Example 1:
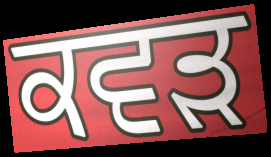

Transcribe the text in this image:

ਕਵੜ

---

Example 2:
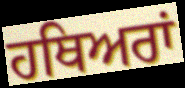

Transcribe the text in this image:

ਹਥਿਅਰਾਂ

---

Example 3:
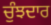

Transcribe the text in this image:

ਚੁੰਝਦਾਰ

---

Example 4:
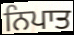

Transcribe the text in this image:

ਨਿਪਾਤ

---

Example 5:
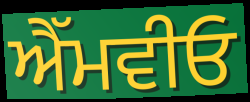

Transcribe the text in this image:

ਐੱਮਵੀਓ